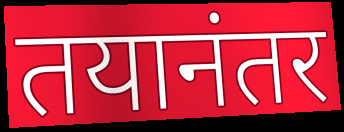
तयानंतर